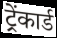
ट्रेंकार्ड